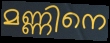
മണ്ണിനെ